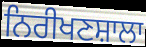
ਨਿਰੀਖਣਸ਼ਾਲਾ